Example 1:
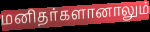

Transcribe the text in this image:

மனிதர்களானாலும்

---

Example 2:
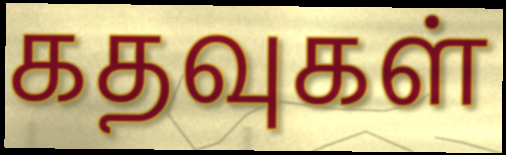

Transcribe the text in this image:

கதவுகள்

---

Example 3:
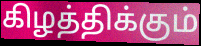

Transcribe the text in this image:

கிழத்திக்கும்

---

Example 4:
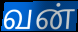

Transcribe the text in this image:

வன்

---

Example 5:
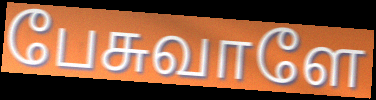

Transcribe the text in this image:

பேசுவாளே